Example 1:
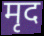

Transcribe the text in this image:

मृद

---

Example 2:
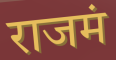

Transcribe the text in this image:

राजमं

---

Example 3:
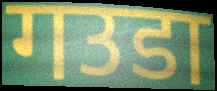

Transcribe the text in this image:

गउडा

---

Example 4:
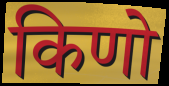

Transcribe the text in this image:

किणो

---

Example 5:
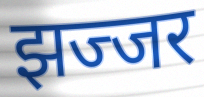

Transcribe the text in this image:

झज्जर